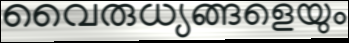
വൈരുധ്യങ്ങളെയും